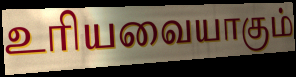
உரியவையாகும்